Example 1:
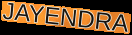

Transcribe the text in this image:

JAYENDRA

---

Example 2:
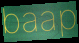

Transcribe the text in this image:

baap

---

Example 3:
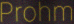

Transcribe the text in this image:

Prohm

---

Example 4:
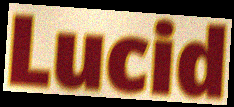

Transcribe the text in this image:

Lucid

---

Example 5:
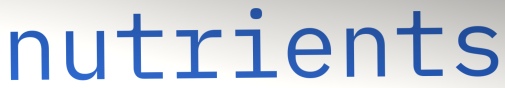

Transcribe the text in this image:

nutrients